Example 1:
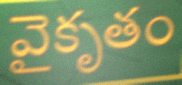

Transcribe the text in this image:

వైకృతం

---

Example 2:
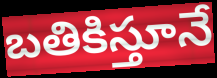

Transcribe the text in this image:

బతికిస్తూనే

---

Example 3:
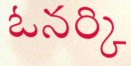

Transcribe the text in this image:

ఓనర్కి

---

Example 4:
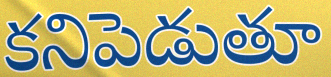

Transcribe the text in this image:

కనిపెడుతూ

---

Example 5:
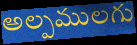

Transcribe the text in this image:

అల్పములగు